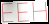
EEH